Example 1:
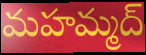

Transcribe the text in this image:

మహమ్మద్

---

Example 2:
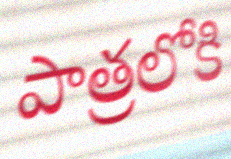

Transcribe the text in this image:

పాత్రలోకి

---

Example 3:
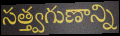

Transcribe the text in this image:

సత్త్వగుణాన్ని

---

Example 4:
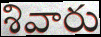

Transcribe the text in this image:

శివారు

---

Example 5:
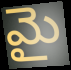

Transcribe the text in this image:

మై